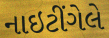
નાઇટીંગેલે